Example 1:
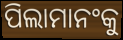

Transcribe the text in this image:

ପିଲାମାନଂକୁ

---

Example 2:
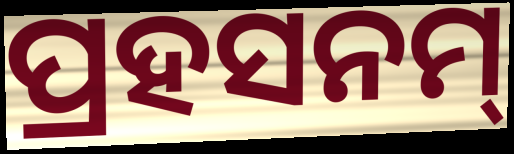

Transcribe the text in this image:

ପ୍ରହସନମ୍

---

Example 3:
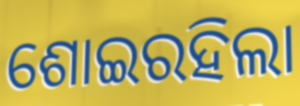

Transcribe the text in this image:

ଶୋଇରହିଲା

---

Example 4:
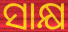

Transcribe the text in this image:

ସାକ୍ଷ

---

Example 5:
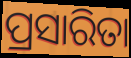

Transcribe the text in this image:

ପ୍ରସାରିତା